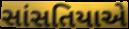
સાંસતિયાએ